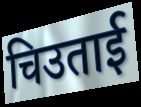
चिउताई